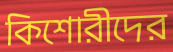
কিশোরীদের